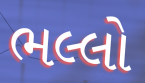
ભલ્લો